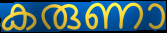
കരുണാ